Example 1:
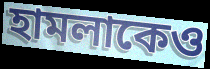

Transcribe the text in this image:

হামলাকেও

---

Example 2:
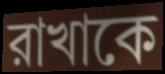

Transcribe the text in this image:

রাখাকে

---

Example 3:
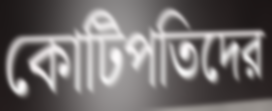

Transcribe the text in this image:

কোটিপতিদের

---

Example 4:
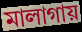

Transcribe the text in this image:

মালাগায়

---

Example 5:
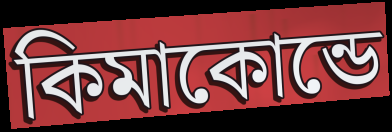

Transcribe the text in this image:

কিমাকোন্ডে